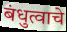
बंधुत्वाचे